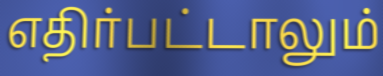
எதிர்பட்டாலும்